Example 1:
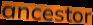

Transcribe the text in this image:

ancestor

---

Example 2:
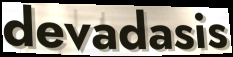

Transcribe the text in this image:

devadasis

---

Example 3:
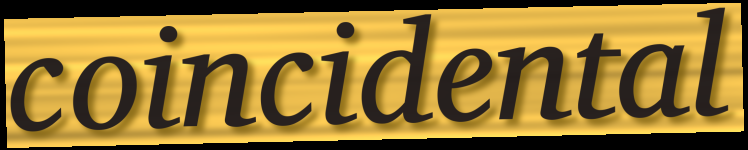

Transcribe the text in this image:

coincidental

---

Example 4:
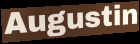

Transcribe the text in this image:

Augustin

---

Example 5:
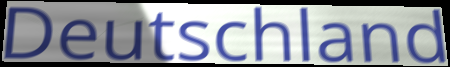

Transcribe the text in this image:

Deutschland